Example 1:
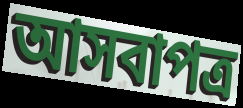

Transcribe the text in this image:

আসবাপত্র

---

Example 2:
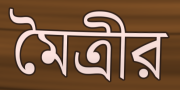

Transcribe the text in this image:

মৈত্রীর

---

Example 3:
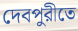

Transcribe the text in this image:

দেবপুরীতে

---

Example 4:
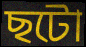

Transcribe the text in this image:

ছটো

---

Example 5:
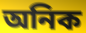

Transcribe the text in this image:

অনিক